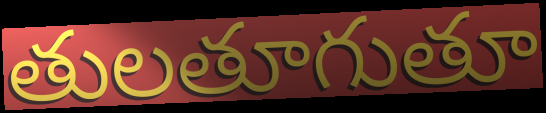
తులతూగుతూ